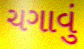
ચગાવું